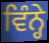
ਵਿੰਨ੍ਹੇ